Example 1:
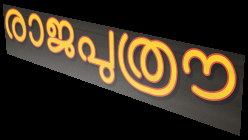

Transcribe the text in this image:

രാജപുത്രൗ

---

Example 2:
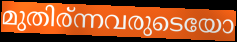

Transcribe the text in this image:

മുതിര്ന്നവരുടെയോ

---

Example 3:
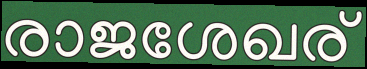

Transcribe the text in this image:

രാജശേഖര്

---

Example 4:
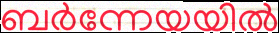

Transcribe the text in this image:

ബർന്നേയയിൽ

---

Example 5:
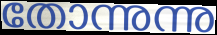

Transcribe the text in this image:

തോന്നുന്നു